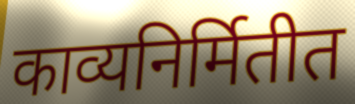
काव्यनिर्मितीत